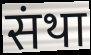
संथा